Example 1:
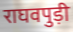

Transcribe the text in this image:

राघवपुड़ी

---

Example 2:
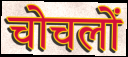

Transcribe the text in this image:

चोचलों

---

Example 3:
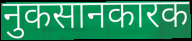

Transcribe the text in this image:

नुकसानकारक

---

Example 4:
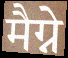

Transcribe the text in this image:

मैग्ने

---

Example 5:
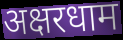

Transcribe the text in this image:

अक्षरधाम